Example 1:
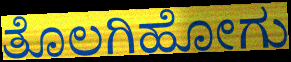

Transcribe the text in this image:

ತೊಲಗಿಹೋಗು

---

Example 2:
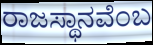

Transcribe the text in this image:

ರಾಜಸ್ಥಾನವೆಂಬ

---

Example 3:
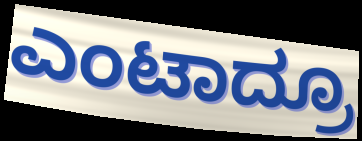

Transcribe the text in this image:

ಎಂಟಾದ್ರೂ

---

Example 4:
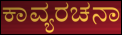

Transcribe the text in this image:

ಕಾವ್ಯರಚನಾ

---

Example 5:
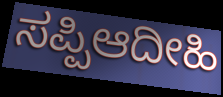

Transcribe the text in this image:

ಸಪ್ಪಿಆದೀಹಿ